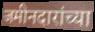
जमीनदारांच्या